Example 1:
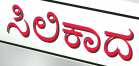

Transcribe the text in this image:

ಸಿಲಿಕಾದ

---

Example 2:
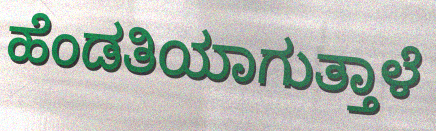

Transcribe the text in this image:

ಹೆಂಡತಿಯಾಗುತ್ತಾಳೆ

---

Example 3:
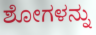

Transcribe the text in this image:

ಶೋಗಳನ್ನು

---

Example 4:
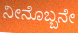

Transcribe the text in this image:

ನೀನೊಬ್ಬನೇ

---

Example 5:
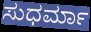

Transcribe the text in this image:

ಸುಧರ್ಮಾ